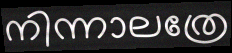
നിന്നാലത്രേ